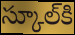
స్కూల్‌కి